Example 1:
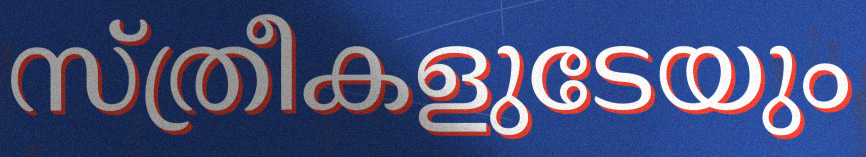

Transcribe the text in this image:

സ്ത്രീകളുടേയും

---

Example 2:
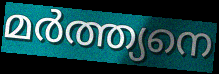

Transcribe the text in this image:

മർത്ത്യനെ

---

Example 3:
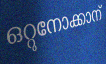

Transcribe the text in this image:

ഒറ്റുനോക്കാന്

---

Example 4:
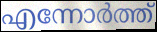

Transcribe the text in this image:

എന്നോർത്ത്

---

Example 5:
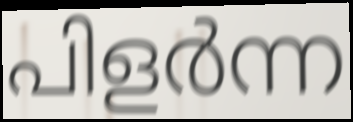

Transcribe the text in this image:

പിളർന്ന